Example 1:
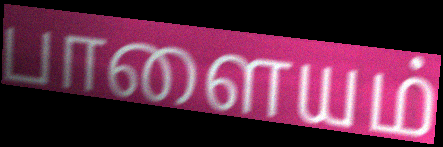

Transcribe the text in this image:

பாளையம்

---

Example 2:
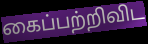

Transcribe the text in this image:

கைப்பற்றிவிட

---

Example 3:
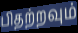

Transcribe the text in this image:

பிதற்றவும்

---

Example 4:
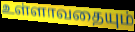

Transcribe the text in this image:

உள்ளாவதையும்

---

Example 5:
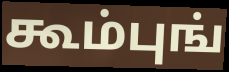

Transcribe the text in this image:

கூம்புங்